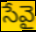
సేవై